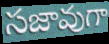
సజావుగా